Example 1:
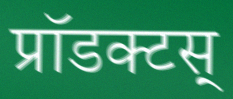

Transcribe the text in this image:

प्रॉडक्टस्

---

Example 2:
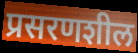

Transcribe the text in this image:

प्रसरणशील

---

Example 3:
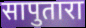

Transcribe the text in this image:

सापुतारा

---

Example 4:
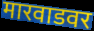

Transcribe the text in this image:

मारवाडवर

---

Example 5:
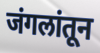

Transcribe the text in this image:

जंगलांतून